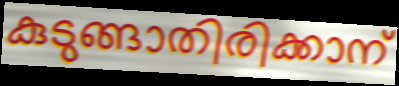
കുടുങ്ങാതിരിക്കാന്